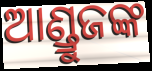
ଆଣ୍ଡ୍ରୁଜଙ୍କ